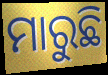
ମାରୁଛି